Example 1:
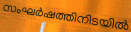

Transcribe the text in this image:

സംഘർഷത്തിനിടയിൽ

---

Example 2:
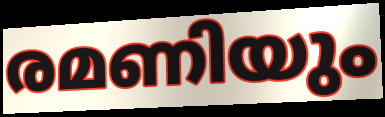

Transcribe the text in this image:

രമണിയും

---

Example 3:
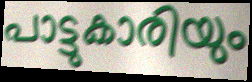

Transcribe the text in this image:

പാട്ടുകാരിയും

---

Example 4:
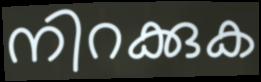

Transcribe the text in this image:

നിറക്കുക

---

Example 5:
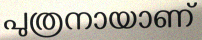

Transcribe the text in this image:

പുത്രനായാണ്